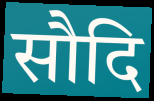
सौदि